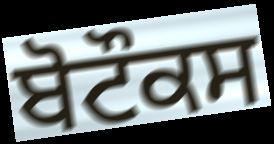
ਬੋਟੌਕਸ